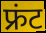
फ्रंट